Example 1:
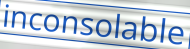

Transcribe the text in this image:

inconsolable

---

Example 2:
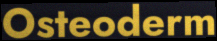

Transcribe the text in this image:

Osteoderm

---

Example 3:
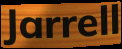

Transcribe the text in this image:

Jarrell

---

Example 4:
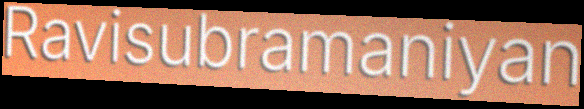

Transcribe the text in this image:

Ravisubramaniyan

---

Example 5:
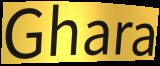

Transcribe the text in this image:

Ghara